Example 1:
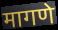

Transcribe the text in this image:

मागणे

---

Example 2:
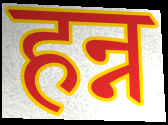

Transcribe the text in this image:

हन्न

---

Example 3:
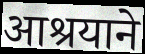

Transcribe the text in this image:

आश्रयाने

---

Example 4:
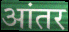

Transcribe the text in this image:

आंतर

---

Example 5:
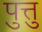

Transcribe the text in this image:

पुत्तु